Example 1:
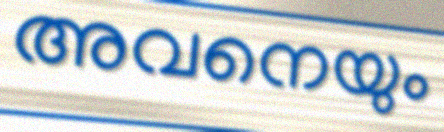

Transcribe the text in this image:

അവനെയും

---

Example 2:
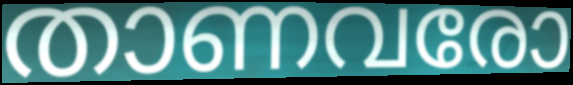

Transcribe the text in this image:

താണവരോ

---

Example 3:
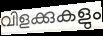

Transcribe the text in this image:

വിളക്കുകളും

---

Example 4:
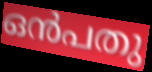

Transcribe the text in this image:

ഒൻപതു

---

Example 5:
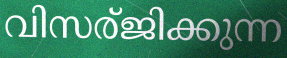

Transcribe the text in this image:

വിസര്ജിക്കുന്ന